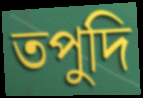
তপুদি